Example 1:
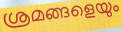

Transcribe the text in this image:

ശ്രമങ്ങളെയും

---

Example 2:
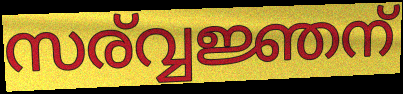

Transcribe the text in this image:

സര്വ്വജ്ഞന്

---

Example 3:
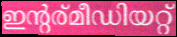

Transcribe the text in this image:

ഇന്റര്മീഡിയറ്റ്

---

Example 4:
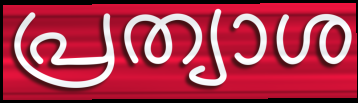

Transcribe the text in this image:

പ്രത്യാശ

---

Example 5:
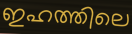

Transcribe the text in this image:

ഇഹത്തിലെ